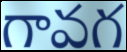
గావగ